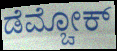
ಡೆಮ್ಚೋಕ್